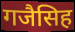
गजैसिह